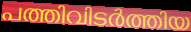
പത്തിവിടർത്തിയ